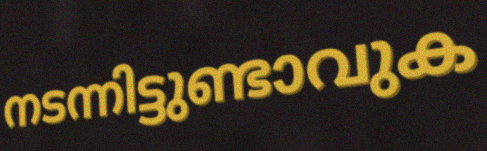
നടന്നിട്ടുണ്ടാവുക